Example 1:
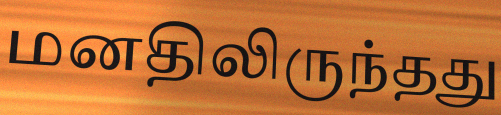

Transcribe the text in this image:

மனதிலிருந்தது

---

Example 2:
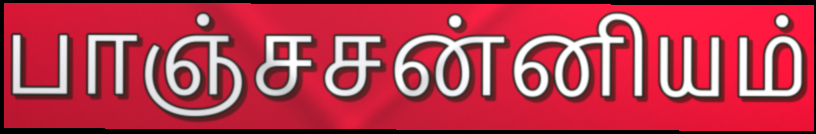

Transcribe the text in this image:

பாஞ்சசன்னியம்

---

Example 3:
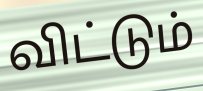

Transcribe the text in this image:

விட்டும்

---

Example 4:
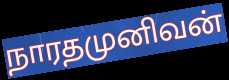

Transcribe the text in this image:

நாரதமுனிவன்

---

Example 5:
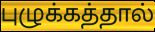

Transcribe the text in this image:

புழுக்கத்தால்